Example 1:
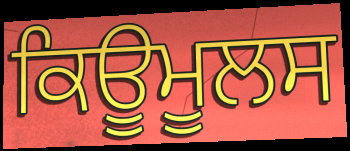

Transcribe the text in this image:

ਕਿਊਮੂਲਸ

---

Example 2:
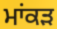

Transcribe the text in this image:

ਮਾਂਕੜ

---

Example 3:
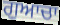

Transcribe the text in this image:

ਗੁਆਚਾ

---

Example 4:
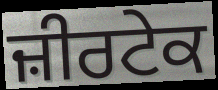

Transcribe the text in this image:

ਜ਼ੀਰਟੇਕ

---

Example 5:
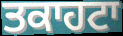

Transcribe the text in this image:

ਤਕਾਹਟਾ